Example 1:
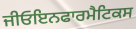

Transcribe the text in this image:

ਜੀਓਇਨਫਾਰਮੈਟਿਕਸ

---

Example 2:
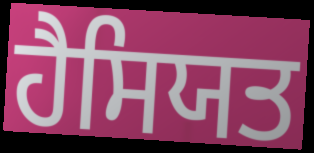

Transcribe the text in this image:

ਹੈਸਿਯਤ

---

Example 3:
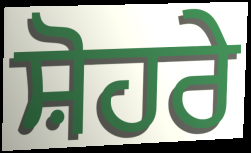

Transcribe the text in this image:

ਸ਼ੋਹਰੇ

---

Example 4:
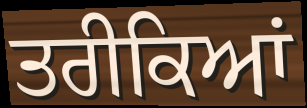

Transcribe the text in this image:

ਤਰੀਕਿਆਂ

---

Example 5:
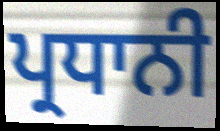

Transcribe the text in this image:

ਪ੍ਰਧਾਨੀ